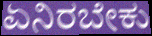
ಏನಿರಬೇಕು